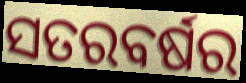
ସତରବର୍ଷର